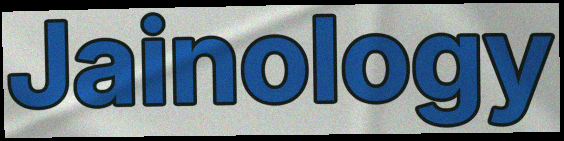
Jainology